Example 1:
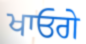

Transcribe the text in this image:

ਖਾਓਗੇ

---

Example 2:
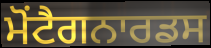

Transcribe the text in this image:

ਮੋਂਟੈਗਨਾਰਡਸ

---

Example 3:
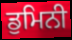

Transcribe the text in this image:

ਡੁਮਿਨੀ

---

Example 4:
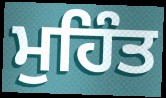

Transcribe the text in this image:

ਮੁਹਿੰਤ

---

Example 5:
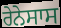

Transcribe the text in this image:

ਰੇਨੇਸਾਸ